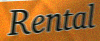
Rental